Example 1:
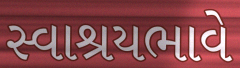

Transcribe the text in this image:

સ્વાશ્રયભાવે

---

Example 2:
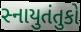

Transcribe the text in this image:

સ્નાયુતંતુકો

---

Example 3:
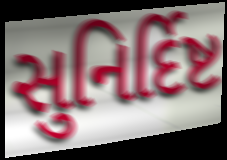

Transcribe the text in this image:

સુનિર્દિષ્ટ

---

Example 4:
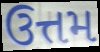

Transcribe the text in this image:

ઉત્તમ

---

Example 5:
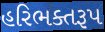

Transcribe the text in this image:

હરિભક્તરૂપ